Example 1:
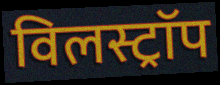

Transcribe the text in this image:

विलस्ट्रॉप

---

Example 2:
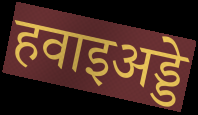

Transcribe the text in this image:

हवाइअड्डे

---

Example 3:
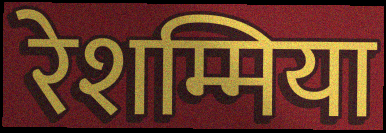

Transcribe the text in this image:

रेशम्मिया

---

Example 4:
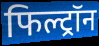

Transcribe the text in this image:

फिल्ट्रॉन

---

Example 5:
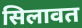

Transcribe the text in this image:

सिलावत